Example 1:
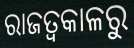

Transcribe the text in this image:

ରାଜତ୍ଵକାଳରୁ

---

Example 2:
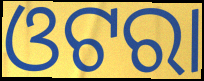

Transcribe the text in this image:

ଓଟରା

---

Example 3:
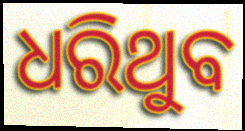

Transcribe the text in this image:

ଧରିଥୁବ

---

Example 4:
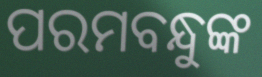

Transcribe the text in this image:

ପରମବନ୍ଧୁଙ୍କ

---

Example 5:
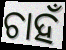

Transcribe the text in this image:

ଚାହଁ